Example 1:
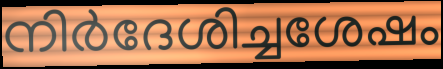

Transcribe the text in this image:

നിർദേശിച്ചശേഷം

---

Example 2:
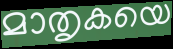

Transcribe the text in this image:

മാതൃകയെ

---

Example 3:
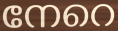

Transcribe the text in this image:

നേറെ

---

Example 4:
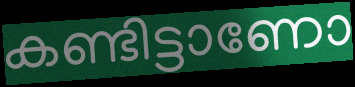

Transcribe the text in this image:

കണ്ടിട്ടാണോ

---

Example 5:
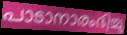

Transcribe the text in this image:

പാടാനാരംഭിച്ചു